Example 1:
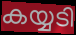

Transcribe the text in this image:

കയ്യടി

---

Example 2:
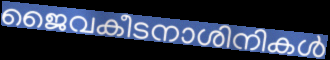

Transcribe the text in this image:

ജൈവകീടനാശിനികൾ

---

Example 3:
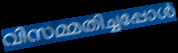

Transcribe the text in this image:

വിസമ്മതിച്ചപ്പോൾ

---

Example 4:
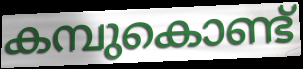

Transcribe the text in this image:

കമ്പുകൊണ്ട്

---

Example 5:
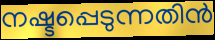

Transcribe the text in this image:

നഷ്ടപ്പെടുന്നതിൻ